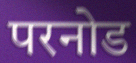
परनोड